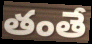
తంతే